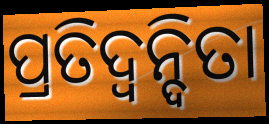
ପ୍ରତିଦ୍ୱନ୍ଦିତା